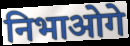
निभाओगे